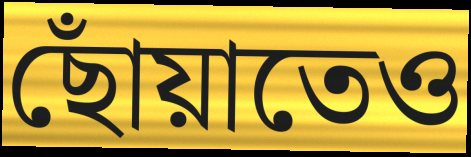
ছোঁয়াতেও